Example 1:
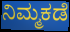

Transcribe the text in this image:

ನಿಮ್ಮಕಡೆ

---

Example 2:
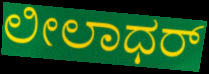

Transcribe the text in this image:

ಲೀಲಾಧರ್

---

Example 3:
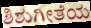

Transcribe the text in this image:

ಶಿಶುಗೀತೆಯ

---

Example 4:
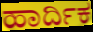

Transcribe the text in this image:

ಹಾರ್ದಿಕ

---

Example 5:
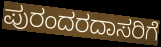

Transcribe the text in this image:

ಪುರಂದರದಾಸರಿಗೆ